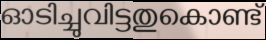
ഓടിച്ചുവിട്ടതുകൊണ്ട്